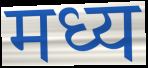
मध्‍य